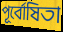
পূর্বোষিতা